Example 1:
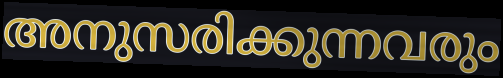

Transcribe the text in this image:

അനുസരിക്കുന്നവരും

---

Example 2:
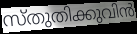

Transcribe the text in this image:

സ്തുതിക്കുവിൻ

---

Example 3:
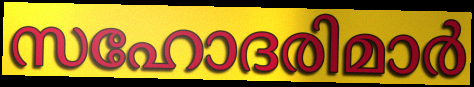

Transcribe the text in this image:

സഹോദരിമാർ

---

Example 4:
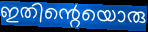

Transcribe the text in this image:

ഇതിന്റെയൊരു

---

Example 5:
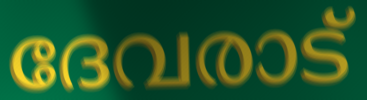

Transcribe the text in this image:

ദേവരാട്